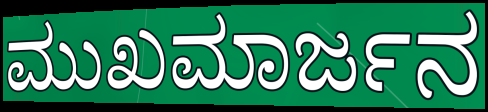
ಮುಖಮಾರ್ಜನ